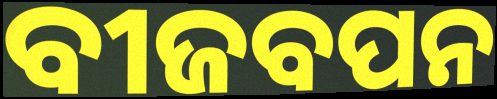
ବୀଜବପନ